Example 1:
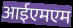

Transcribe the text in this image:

आईएमएम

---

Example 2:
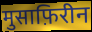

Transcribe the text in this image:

मुसाफ़िरीन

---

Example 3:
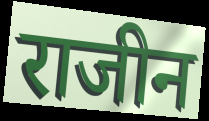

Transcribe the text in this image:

राजीन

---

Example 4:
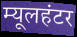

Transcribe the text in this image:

म्यूलहंटर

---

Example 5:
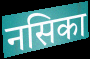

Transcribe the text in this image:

नसिका